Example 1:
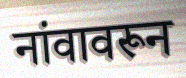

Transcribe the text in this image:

नांवावरून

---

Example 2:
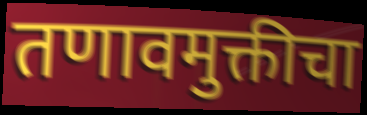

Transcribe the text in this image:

तणावमुक्तीचा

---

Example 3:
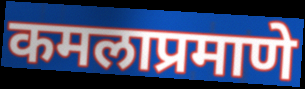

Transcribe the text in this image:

कमलाप्रमाणे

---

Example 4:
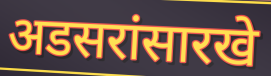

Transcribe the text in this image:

अडसरांसारखे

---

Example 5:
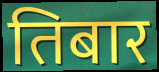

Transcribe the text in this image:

तिबार